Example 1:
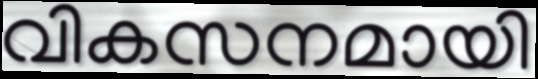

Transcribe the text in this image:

വികസനമായി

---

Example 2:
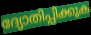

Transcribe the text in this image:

ദ്യോതിപ്പിക്കുക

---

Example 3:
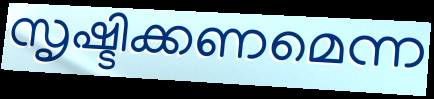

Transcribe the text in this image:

സൃഷ്ടിക്കണമെന്ന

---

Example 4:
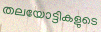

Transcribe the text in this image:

തലയോട്ടികളുടെ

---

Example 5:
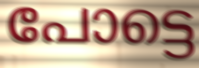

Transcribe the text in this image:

പോട്ടെ